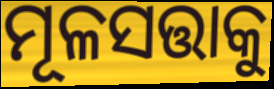
ମୂଳସତ୍ତାକୁ